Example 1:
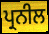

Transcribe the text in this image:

ਪ੍ਰਨੀਲ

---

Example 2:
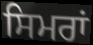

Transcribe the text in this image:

ਸਿਮਰਾਂ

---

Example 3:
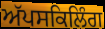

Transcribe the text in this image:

ਅੱਪਸਕਿਲਿੰਗ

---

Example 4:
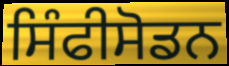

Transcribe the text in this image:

ਸਿੰਫੀਸੋਡਨ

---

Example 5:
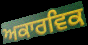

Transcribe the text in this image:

ਅਕਾਰਵਿਕ